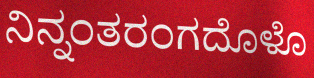
ನಿನ್ನಂತರಂಗದೊಳೊ